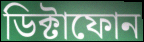
ডিক্টাফোন